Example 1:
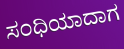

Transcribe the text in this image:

ಸಂಧಿಯಾದಾಗ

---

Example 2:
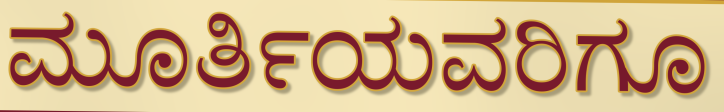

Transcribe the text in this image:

ಮೂರ್ತಿಯವರಿಗೂ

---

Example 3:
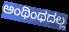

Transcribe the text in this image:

ಅಂಥಿಂಥದಲ್ಲ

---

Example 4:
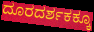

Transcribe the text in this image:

ದೂರದರ್ಶಕಕ್ಕೂ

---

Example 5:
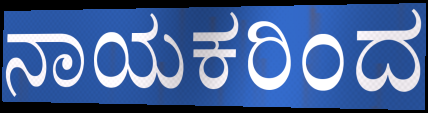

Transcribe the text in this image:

ನಾಯಕರಿಂದ